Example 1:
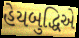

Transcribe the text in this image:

હેયબુદ્ધિએ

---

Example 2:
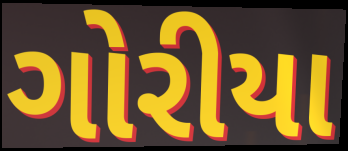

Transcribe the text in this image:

ગોરીયા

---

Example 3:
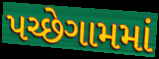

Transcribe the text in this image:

પચ્છેગામમાં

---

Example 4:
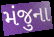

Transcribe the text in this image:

મંજુના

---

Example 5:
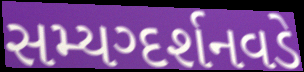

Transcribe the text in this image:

સમ્યગ્દર્શનવડે